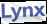
Lynx